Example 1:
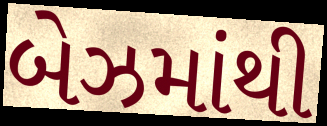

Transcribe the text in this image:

બેઝમાંથી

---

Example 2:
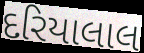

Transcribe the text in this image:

દરિયાલાલ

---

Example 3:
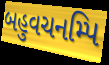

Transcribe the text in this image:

બહુવચનમ્પિ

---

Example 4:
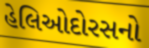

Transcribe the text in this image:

હેલિઓદોરસનો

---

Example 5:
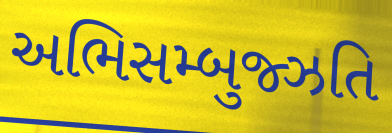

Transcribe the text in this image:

અભિસમ્બુજ્ઝતિ